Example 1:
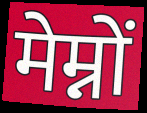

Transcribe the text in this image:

मेम्नों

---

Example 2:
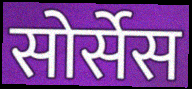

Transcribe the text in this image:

सोर्सेस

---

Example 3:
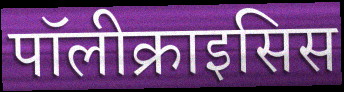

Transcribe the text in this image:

पॉलीक्राइसिस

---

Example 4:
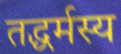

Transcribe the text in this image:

तद्धर्मस्य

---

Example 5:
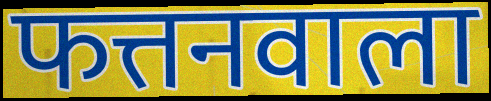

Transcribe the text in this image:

फत्तनवाला